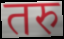
तरु